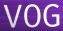
VOG